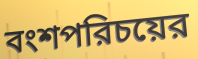
বংশপরিচয়ের